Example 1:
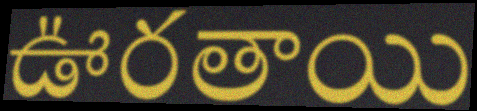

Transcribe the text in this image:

ఊరతాయి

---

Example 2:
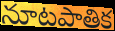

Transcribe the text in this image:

నూటపాతిక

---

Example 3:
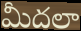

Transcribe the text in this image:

మీదలా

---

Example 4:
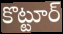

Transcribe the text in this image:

కొట్టూర్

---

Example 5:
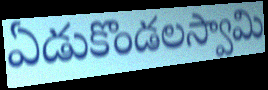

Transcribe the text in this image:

ఏడుకొండలస్వామి